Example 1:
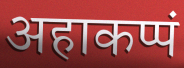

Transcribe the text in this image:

अहाकप्पं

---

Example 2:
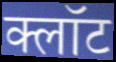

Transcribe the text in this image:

क्‍लॉट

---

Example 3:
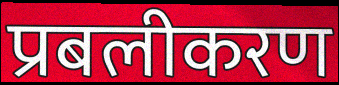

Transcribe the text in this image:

प्रबलीकरण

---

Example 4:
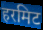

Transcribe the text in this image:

हरमिट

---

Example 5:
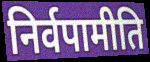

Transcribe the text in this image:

निर्वपामीति